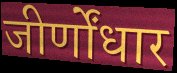
जीर्णोंधार